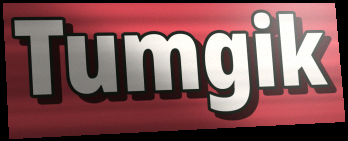
Tumgik